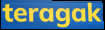
teragak